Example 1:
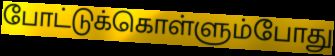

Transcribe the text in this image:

போட்டுக்கொள்ளும்போது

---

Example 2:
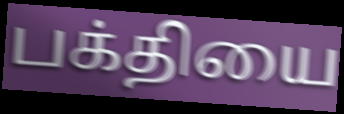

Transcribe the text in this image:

பக்தியை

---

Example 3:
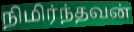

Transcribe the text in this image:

நிமிர்ந்தவன்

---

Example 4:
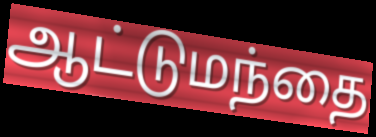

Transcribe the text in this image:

ஆட்டுமந்தை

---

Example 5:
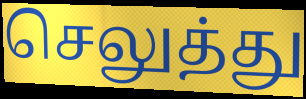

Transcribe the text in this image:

செலுத்து